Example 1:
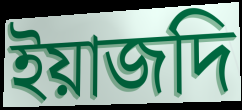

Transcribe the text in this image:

ইয়াজদি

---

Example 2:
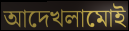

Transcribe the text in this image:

আদেখলামোই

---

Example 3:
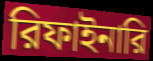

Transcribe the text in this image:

রিফাইনারি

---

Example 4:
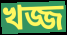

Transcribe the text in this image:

খজ্জ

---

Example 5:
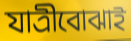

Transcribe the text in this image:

যাত্রীবোঝাই